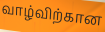
வாழ்விற்கான